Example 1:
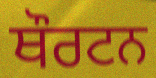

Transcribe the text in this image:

ਥੌਰਟਨ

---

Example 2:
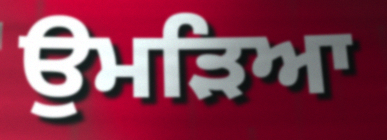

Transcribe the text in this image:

ਉਮੜਿਆ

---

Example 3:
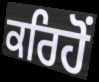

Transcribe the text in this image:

ਕਰਿਹੋਂ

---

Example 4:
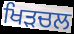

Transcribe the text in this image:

ਖਿੜਚਲ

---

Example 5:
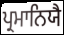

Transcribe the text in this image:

ਪ੍ਰਮਾਨਿਯੈ